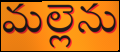
మల్లెను